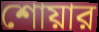
শোয়ার